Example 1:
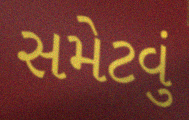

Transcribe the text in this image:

સમેટવું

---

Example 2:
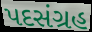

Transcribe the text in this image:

પદસંગ્રહ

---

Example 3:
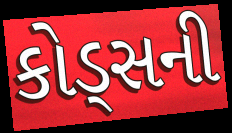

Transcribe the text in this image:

કોડ્સની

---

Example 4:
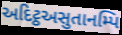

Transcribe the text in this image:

અદિટ્ઠઅસુતાનમ્પિ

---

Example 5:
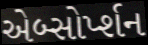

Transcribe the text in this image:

એબ્સોર્પ્શન